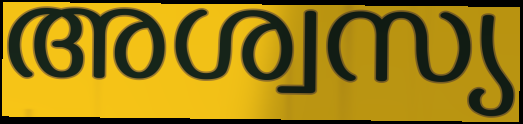
അശ്വസ്യ